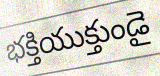
భక్తియుక్తుండై